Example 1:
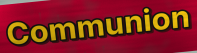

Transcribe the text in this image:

Communion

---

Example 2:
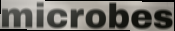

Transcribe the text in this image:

microbes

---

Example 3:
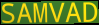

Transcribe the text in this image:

SAMVAD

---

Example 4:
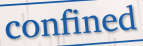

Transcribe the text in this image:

confined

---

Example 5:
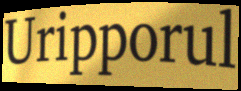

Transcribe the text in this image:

Uripporul